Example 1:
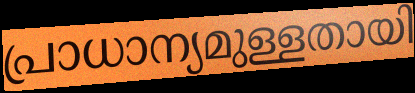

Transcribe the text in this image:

പ്രാധാന്യമുള്ളതായി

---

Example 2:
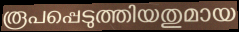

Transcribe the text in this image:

രൂപപ്പെടുത്തിയതുമായ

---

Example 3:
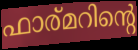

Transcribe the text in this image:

ഫാര്മറിന്റെ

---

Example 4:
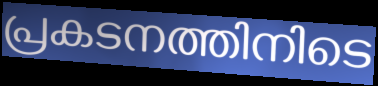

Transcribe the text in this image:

പ്രകടനത്തിനിടെ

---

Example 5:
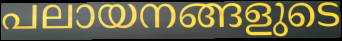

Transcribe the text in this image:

പലായനങ്ങളുടെ